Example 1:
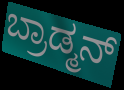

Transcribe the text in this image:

ಬ್ರಾಡ್ಮನ್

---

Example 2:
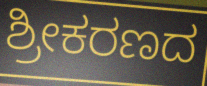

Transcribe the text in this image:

ಶ್ರೀಕರಣದ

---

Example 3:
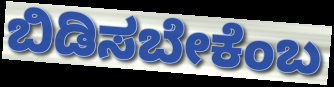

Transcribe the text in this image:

ಬಿಡಿಸಬೇಕೆಂಬ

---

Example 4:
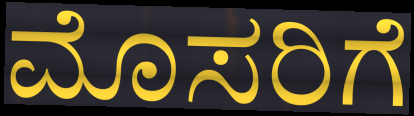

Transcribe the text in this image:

ಮೊಸರಿಗೆ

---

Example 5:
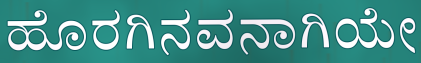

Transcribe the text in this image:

ಹೊರಗಿನವನಾಗಿಯೇ